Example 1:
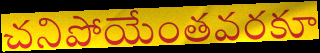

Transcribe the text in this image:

చనిపోయేంతవరకూ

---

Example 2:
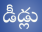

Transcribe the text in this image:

డీడ్లు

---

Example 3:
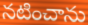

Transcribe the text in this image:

నటించాను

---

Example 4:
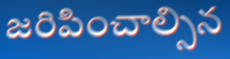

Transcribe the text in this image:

జరిపించాల్సిన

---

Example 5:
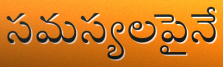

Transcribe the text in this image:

సమస్యలపైనే